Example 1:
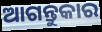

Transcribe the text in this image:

ଆଗନ୍ତୁକାର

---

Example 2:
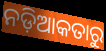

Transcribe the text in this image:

ନଡ଼ିଆକତାରୁ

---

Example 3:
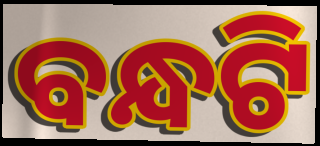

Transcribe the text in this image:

ବନ୍ଧଟି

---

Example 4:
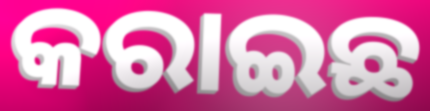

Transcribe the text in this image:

କରାଇଛ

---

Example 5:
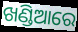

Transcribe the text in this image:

ଖଣ୍ଡିଆରେ